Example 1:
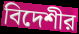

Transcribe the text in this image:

বিদেশীর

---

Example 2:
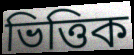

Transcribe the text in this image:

ভিত্তিক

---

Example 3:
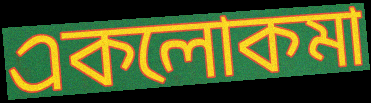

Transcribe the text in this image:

একলোকমা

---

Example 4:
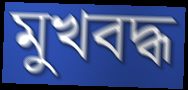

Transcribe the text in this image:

মুখবদ্ধ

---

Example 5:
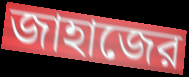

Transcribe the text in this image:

জাহাজের